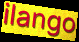
ilango